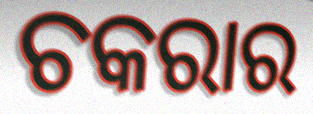
ଚକରାର